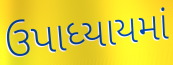
ઉપાધ્યાયમાં